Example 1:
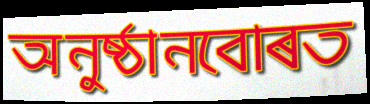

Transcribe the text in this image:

অনুষ্ঠানবোৰত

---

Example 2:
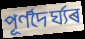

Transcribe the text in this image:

পূৰ্ণদৈৰ্ঘ্যৰ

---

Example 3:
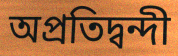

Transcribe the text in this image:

অপ্ৰতিদ্বন্দী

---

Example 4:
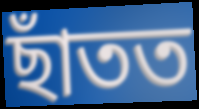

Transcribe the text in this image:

ছাঁতত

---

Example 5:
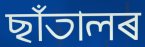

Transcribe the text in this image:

ছাঁতালৰ